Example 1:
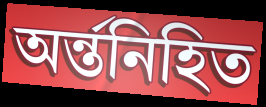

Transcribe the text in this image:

অর্ন্তনিহিত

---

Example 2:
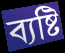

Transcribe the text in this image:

ব্যষ্টি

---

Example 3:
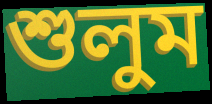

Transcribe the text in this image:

শুলুম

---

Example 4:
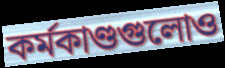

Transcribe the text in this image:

কর্মকাণ্ডগুলোও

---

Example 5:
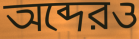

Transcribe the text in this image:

অব্দেরও